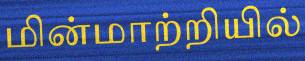
மின்மாற்றியில்